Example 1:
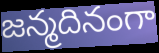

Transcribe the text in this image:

జన్మదినంగా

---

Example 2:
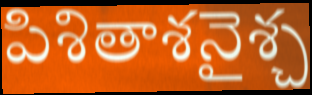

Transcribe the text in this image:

పిశితాశనైశ్చ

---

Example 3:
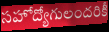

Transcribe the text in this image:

సహోద్యోగులందరికీ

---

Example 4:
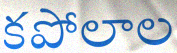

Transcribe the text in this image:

కపోలాల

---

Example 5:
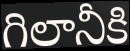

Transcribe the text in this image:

గిలానీకి